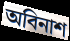
অবিনাশ